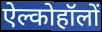
ऐल्कोहॉलों